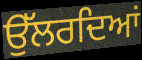
ਉੱਲਰਦਿਆਂ